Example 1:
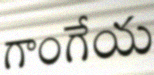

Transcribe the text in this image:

గాంగేయ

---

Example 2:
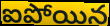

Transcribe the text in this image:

ఐపోయిన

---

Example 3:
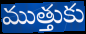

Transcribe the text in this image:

ముత్తుకు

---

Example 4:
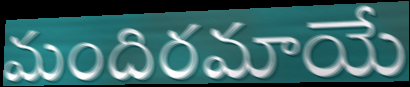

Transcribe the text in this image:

మందిరమాయే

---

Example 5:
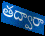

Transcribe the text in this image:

తద్వారా